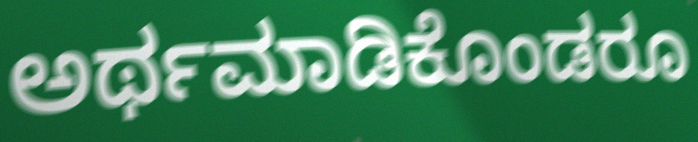
ಅರ್ಥಮಾಡಿಕೊಂಡರೂ